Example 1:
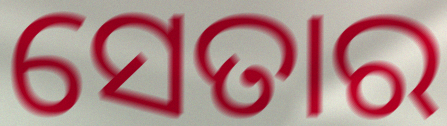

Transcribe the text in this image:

ସେତାର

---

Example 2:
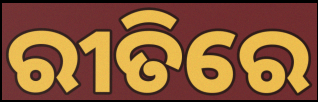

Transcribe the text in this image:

ରୀତିରେ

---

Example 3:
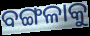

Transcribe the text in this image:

ବଙ୍ଗଳାକୁ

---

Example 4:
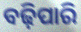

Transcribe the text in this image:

ବଢ଼ିପାରି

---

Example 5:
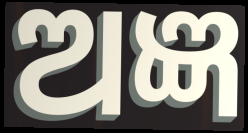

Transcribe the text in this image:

ଅଜ୍ଞ